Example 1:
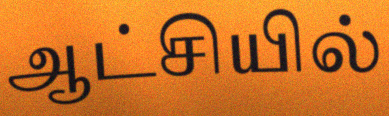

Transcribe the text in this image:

ஆட்சியில்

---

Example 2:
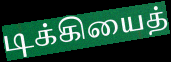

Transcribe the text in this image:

டிக்கியைத்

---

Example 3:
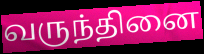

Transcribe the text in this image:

வருந்தினை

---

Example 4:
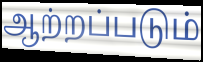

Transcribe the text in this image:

ஆற்றப்படும்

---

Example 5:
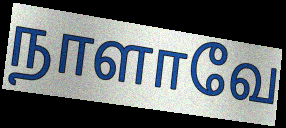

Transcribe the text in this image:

நாளாவே